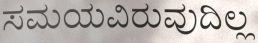
ಸಮಯವಿರುವುದಿಲ್ಲ